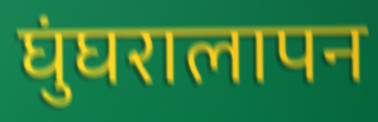
घुंघरालापन